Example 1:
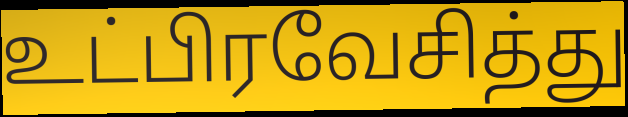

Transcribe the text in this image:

உட்பிரவேசித்து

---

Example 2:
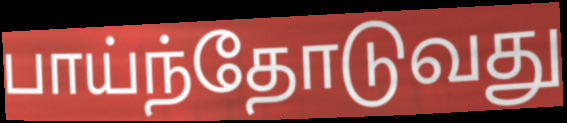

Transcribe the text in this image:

பாய்ந்தோடுவது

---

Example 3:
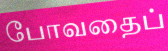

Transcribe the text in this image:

போவதைப்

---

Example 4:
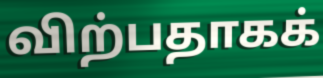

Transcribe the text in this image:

விற்பதாகக்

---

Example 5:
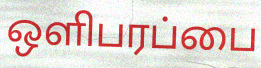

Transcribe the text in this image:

ஒளிபரப்பை